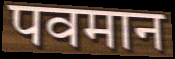
पवमान